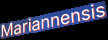
Mariannensis